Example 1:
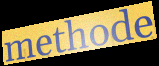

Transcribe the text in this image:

methode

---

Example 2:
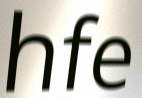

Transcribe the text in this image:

hfe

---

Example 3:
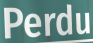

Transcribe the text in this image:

Perdu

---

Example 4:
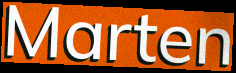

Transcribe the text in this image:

Marten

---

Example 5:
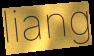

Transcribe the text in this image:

liang